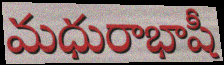
మధురాభాషీ